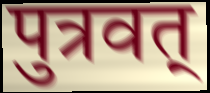
पुत्रवत्